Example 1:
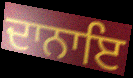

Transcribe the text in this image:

ਦਾਨਾਇ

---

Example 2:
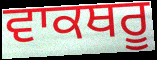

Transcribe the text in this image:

ਵਾਕਥਰੂ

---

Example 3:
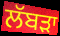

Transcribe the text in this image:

ਲੱਬੜਾ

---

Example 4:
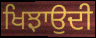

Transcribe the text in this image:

ਖਿਝਾਉਦੀ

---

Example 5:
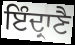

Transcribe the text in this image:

ਇੰਦ੍ਰਾਣੈ